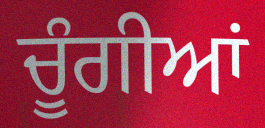
ਚੂੰਗੀਆਂ